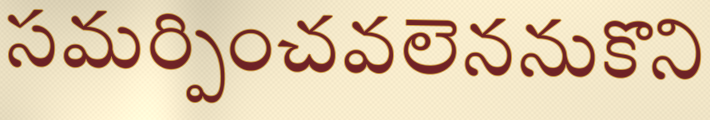
సమర్పించవలెననుకొని